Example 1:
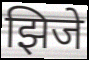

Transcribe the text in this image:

झिजे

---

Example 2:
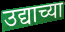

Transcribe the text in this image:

उद्याच्या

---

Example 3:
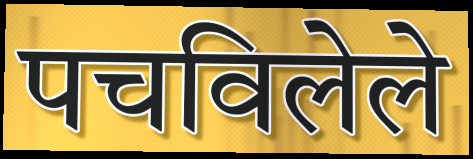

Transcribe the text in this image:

पचविलेले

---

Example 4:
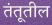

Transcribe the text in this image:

तंतूतील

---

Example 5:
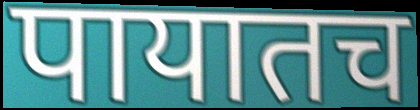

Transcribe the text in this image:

पायातच